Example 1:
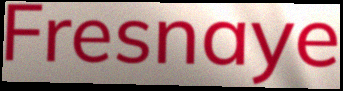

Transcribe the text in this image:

Fresnaye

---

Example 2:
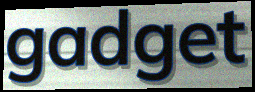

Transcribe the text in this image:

gadget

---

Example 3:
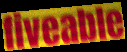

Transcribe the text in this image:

fiveable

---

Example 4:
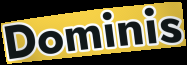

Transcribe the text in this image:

Dominis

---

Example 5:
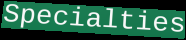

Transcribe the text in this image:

Specialties